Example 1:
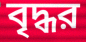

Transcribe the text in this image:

বৃদ্ধর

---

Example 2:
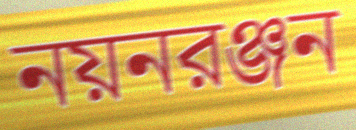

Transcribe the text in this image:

নয়নরঞ্জন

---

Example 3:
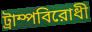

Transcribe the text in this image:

ট্রাম্পবিরোধী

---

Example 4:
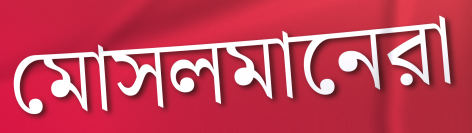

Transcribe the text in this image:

মোসলমানেরা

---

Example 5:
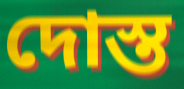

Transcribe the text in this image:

দোস্ত